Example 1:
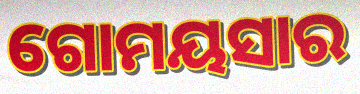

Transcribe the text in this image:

ଗୋମୟସାର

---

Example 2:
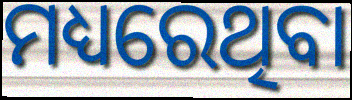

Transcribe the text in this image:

ମଧ୍ୟରେଥିବା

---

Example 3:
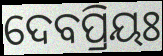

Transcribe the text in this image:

ଦେବପ୍ରିୟଃ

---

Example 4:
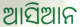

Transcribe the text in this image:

ଆସିଆନ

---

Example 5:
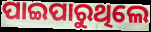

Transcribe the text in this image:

ପାଇପାରୁଥିଲେ